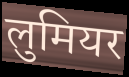
लुमियर